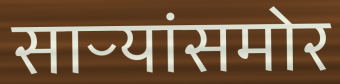
साऱ्यांसमोर